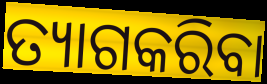
ତ୍ୟାଗକରିବା